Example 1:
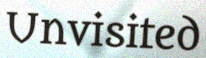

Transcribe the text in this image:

Unvisited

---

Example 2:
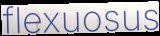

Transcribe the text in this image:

flexuosus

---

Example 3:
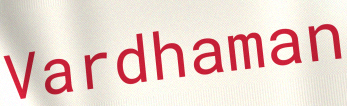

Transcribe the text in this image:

Vardhaman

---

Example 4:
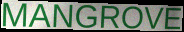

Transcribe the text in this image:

MANGROVE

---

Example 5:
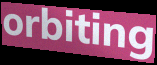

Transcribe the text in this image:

orbiting